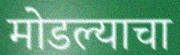
मोडल्याचा